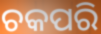
ଚକପରି